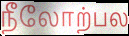
நீலோற்பல